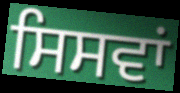
ਸਿਸਵਾਂ